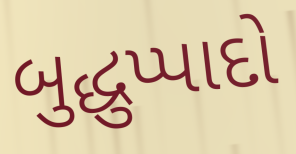
બુદ્ધુપ્પાદો